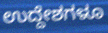
ಉದ್ದೇಶಗಳೂ